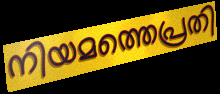
നിയമത്തെപ്രതി